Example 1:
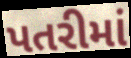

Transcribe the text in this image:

પતરીમાં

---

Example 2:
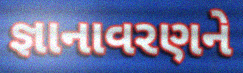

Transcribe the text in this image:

જ્ઞાનાવરણને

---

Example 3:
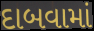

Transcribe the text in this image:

દાબવામાં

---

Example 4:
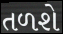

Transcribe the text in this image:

તળશે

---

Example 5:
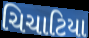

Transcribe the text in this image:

ચિચાટિયા